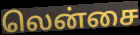
லென்சை